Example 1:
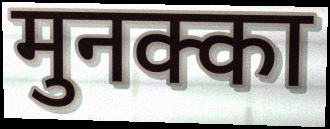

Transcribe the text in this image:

मुनक्का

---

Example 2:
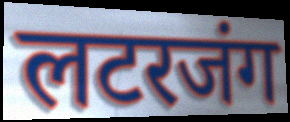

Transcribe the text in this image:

लटरजंग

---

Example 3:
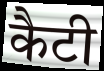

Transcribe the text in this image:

कैटी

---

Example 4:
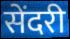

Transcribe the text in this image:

सेंदरी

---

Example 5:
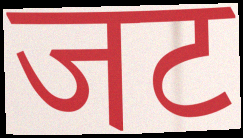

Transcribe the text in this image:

जट